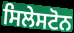
ਸਿਲੇਸਟੋਨ